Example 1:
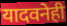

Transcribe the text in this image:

यादवनेही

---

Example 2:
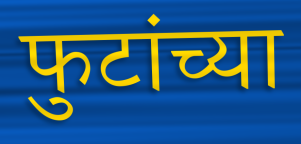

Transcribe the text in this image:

फुटांच्या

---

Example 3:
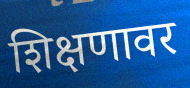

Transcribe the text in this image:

शिक्षणावर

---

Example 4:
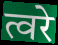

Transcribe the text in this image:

त्वरे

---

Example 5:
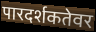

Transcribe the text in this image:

पारदर्शकतेवर